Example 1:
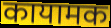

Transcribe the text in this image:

कायामक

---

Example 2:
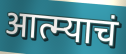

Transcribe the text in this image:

आत्म्याचं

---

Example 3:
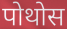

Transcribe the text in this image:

पोथोस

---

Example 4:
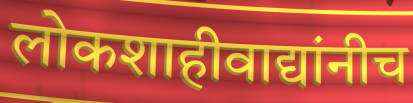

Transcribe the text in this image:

लोकशाहीवाद्यांनीच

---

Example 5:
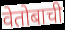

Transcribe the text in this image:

वेतोबाची